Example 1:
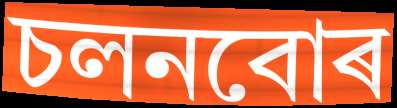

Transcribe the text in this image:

চলনবোৰ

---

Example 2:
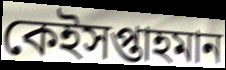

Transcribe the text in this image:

কেইসপ্তাহমান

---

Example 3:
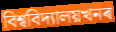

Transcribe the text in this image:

বিশ্ববিদ্যালয়খনৰ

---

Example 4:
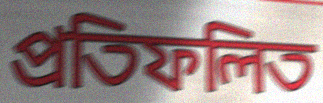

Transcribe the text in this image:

প্ৰতিফলিত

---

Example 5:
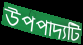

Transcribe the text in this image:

উপপাদ্যটি